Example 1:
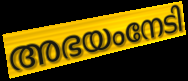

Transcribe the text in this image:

അഭയംനേടി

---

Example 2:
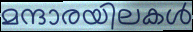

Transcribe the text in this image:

മന്ദാരയിലകൾ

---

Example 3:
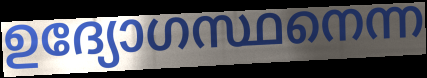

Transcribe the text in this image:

ഉദ്യോഗസ്ഥനെന്ന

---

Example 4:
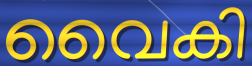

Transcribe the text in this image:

വൈകി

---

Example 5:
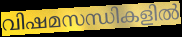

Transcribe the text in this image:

വിഷമസന്ധികളിൽ